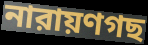
নারায়ণগছ